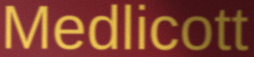
Medlicott